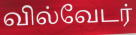
வில்வேடர்